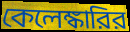
কেলেঙ্কারির